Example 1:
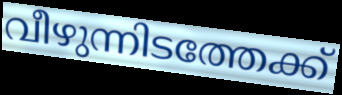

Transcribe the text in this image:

വീഴുന്നിടത്തേക്ക്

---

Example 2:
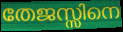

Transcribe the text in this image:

തേജസ്സിനെ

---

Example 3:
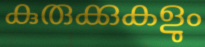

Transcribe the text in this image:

കുരുക്കുകളും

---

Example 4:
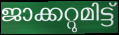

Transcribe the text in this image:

ജാക്കറ്റുമിട്ട്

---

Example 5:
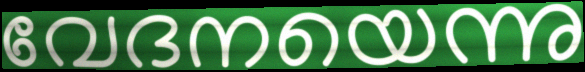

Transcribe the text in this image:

വേദനയെന്നു